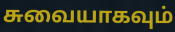
சுவையாகவும்